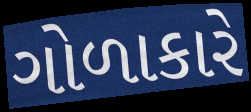
ગોળાકારે